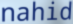
nahid